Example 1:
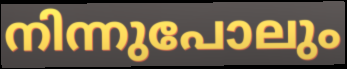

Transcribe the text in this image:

നിന്നുപോലും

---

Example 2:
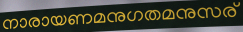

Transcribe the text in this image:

നാരായണമനുഗതമനുസര്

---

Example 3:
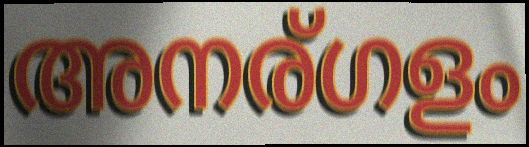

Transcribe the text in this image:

അനര്ഗളം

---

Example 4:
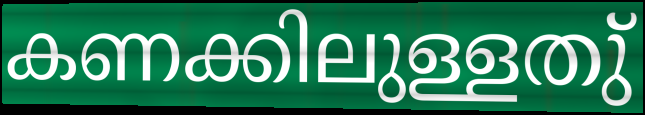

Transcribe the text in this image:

കണക്കിലുള്ളതു്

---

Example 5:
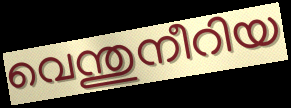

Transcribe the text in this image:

വെന്തുനീറിയ